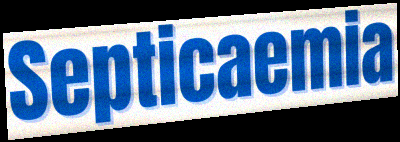
Septicaemia